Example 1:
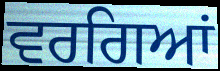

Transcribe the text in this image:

ਵਰਗਿਆਂ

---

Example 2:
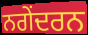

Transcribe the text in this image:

ਨਗੇਂਦਰਨ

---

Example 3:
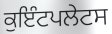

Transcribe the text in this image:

ਕੁਇੰਟਪਲੇਟਸ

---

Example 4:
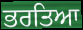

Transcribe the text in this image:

ਭਰਤਿਆ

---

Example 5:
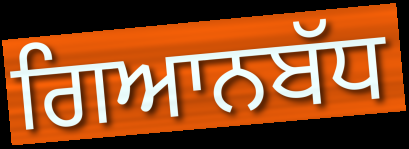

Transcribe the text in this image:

ਗਿਆਨਬੱਧ